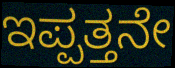
ಇಪ್ಪತ್ತನೇ